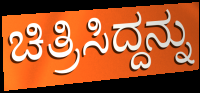
ಚಿತ್ರಿಸಿದ್ದನ್ನು